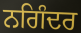
ਨਗਿੰਦਰ